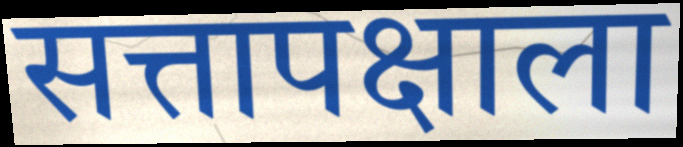
सत्तापक्षाला